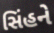
સિંહને